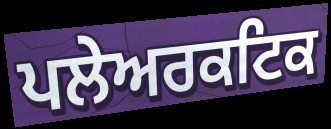
ਪਲੇਅਰਕਟਿਕ